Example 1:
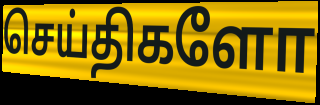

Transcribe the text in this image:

செய்திகளோ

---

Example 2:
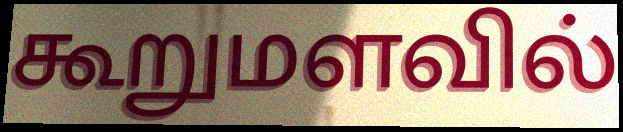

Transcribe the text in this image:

கூறுமளவில்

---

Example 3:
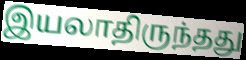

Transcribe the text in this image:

இயலாதிருந்தது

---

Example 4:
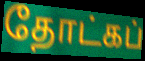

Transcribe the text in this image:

தோட்கப்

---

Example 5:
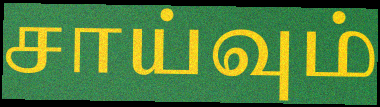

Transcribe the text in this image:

சாய்வும்